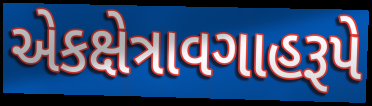
એકક્ષેત્રાવગાહરૂપે